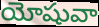
యోషువా